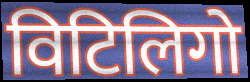
विटिलिगो